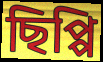
ছিপ্পি